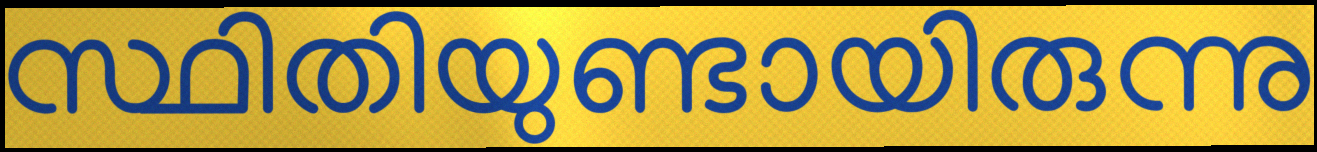
സ്ഥിതിയുണ്ടായിരുന്നു